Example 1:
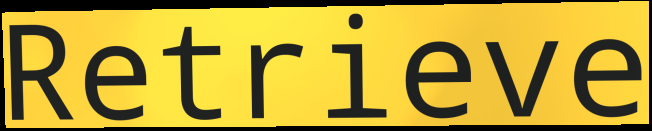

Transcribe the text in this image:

Retrieve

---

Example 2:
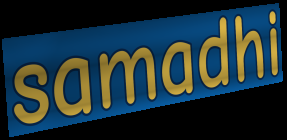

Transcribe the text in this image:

samadhi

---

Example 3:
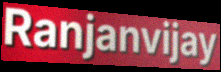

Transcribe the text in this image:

Ranjanvijay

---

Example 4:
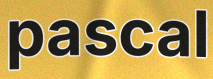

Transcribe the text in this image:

pascal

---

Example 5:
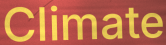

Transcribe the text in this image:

Climate